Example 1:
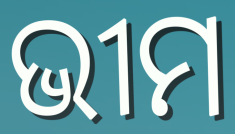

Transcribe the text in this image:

ଭୀମ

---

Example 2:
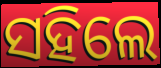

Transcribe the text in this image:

ସହିଲେ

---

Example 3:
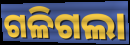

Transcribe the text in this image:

ଗଳିଗଲା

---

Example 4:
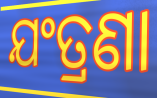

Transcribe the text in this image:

ଯଂତ୍ରଣା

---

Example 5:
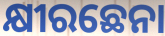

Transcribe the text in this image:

କ୍ଷୀରଛେନା